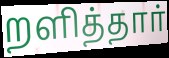
றளித்தார்